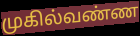
முகில்வண்ண